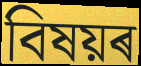
বিষয়ৰ